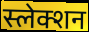
स्लेक्शन